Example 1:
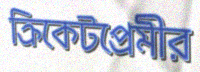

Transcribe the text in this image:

ক্রিকেটপ্রেমীর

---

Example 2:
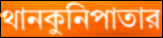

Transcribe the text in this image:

থানকুনিপাতার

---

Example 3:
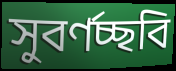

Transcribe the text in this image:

সুবর্ণচ্ছবি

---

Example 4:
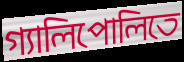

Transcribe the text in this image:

গ্যালিপোলিতে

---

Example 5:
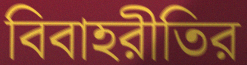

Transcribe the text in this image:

বিবাহরীতির